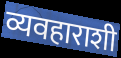
व्यवहाराशी